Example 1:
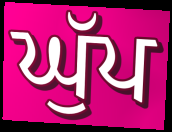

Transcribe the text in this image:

ਘੁੱਪ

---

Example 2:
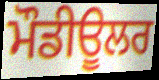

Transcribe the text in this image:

ਮੌਡੀਊਲਰ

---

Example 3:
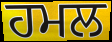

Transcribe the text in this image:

ਹਮਲ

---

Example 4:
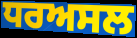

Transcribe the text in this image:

ਧਰਅਸਲ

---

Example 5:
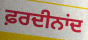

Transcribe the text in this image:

ਫ਼ਰਦੀਨਾਂਦ